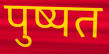
पुष्यत